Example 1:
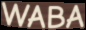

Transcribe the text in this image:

WABA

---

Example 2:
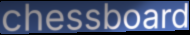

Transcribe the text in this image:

chessboard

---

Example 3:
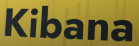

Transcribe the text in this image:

Kibana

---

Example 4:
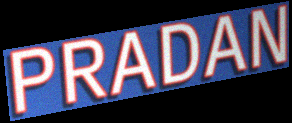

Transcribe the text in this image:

PRADAN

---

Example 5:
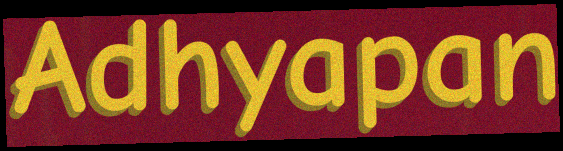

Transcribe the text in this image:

Adhyapan